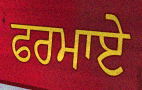
ਫਰਮਾਏ